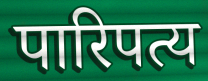
पारिपत्य